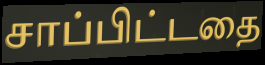
சாப்பிட்டதை